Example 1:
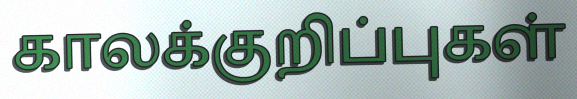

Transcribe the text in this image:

காலக்குறிப்புகள்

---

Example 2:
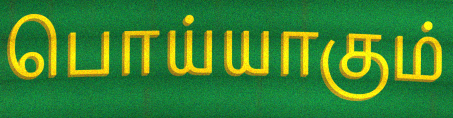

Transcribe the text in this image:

பொய்யாகும்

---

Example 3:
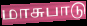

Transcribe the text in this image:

மாசுபாடு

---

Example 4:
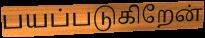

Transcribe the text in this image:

பயப்படுகிறேன்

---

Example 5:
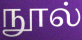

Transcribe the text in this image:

நூல்